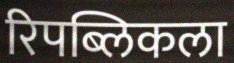
रिपब्लिकला